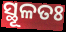
ସ୍ଥୂଳତଃ